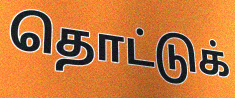
தொட்டுக்